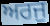
ਅਰਜੁ